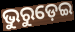
ଭୁରୁଡ଼େଇ